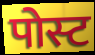
पोस्‍ट